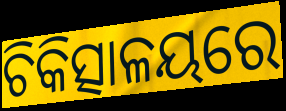
ଚିକିତ୍ସାଳୟରେ